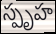
స్పృహ